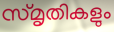
സ്മൃതികളും